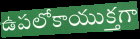
ఉపలోకాయుక్తగా